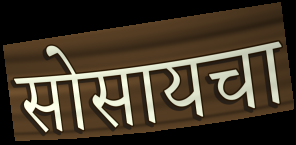
सोसायचा